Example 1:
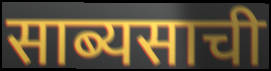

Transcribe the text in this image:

साब्यसाची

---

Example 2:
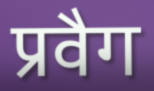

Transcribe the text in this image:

प्रवैग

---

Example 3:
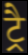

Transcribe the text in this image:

ट्रै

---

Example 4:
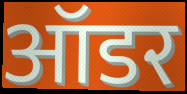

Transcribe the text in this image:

ऑडर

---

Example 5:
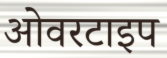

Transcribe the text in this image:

ओवरटाइप